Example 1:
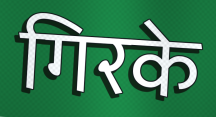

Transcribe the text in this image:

गिरके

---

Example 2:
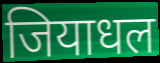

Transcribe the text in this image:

जियाधल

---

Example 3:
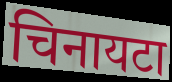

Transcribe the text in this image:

चिनायटा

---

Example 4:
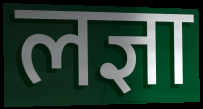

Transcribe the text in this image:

लज्ञा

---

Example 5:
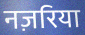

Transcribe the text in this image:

नज़रिया